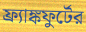
ফ্র্যাঙ্কফুর্টের